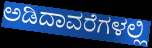
ಅಡಿದಾವರೆಗಳಲ್ಲಿ